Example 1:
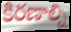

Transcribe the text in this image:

కిరణాల్ని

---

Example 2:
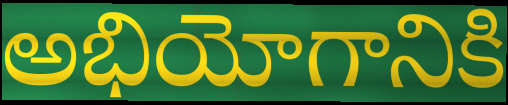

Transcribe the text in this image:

అభియోగానికి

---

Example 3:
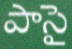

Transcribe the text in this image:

పాసై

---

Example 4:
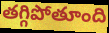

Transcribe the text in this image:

తగ్గిపోతూంది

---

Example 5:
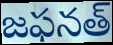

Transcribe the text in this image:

జఫనత్